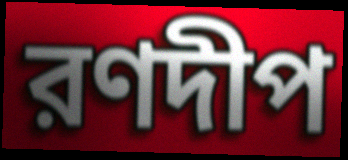
রণদীপ